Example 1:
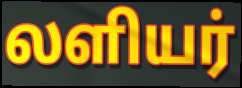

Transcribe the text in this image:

லளியர்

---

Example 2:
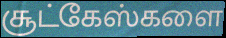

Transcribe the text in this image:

சூட்கேஸ்களை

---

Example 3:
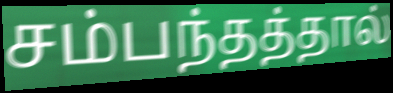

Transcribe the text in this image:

சம்பந்தத்தால்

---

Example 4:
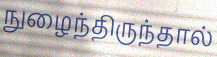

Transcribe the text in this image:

நுழைந்திருந்தால்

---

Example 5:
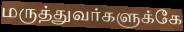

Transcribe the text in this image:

மருத்துவர்களுக்கே